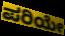
ಪರಿಯೇ